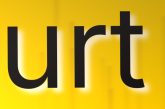
urt